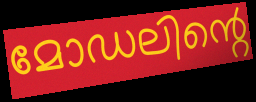
മോഡലിന്റെ